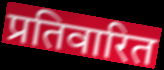
प्रतिवारित